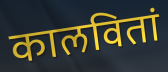
कालवितां